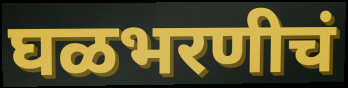
घळभरणीचं